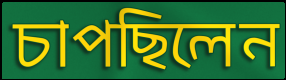
চাপছিলেন